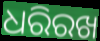
ଧରିରଖ